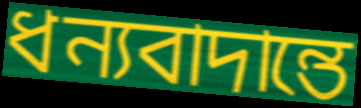
ধন্যবাদান্তে